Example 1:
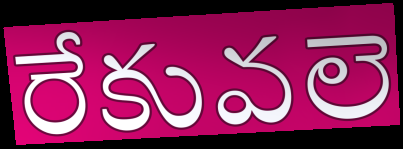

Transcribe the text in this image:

రేకువలె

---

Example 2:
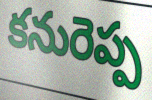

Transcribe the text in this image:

కనురెప్ప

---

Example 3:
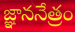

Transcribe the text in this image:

జ్ఞాననేత్రం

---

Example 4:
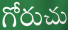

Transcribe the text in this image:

గోరుచు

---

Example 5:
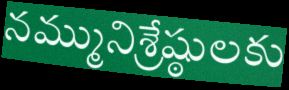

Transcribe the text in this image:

నమ్మునిశ్రేష్ఠులకు